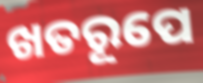
ଖତରୂପେ